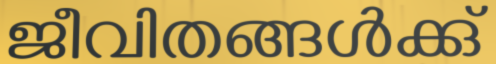
ജീവിതങ്ങൾക്കു്